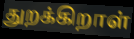
துறக்கிறாள்